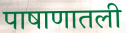
पाषाणातली